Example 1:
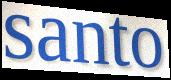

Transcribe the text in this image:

santo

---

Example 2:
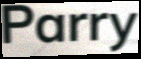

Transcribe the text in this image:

Parry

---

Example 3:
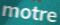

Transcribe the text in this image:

motre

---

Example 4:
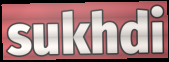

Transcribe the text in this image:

sukhdi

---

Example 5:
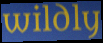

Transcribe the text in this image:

wildly